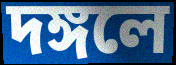
দঙ্গলে